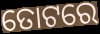
ତୋଟରେ